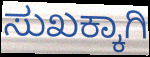
ಸುಖಕ್ಕಾಗಿ